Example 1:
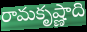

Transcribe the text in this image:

రామకృష్ణాది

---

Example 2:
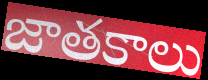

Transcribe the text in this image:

జాతకాలు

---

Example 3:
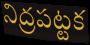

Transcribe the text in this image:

నిద్రపట్టక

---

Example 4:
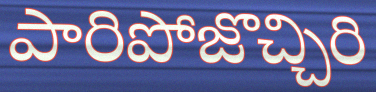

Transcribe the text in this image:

పారిపోజొచ్చిరి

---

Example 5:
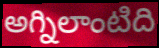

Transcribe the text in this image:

అగ్నిలాంటిది